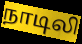
நாடிலி